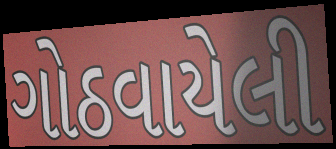
ગોઠવાયેલી